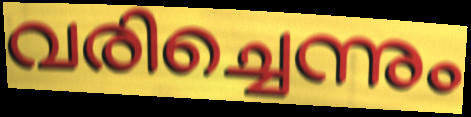
വരിച്ചെന്നും